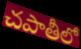
చపాతీలో